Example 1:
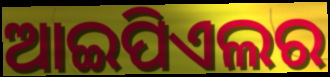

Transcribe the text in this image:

ଆଇପିଏଲର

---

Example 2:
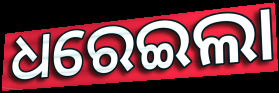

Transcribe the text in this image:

ଧରେଇଲା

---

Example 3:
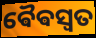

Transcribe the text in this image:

ଵୈଵସ୍ୱତ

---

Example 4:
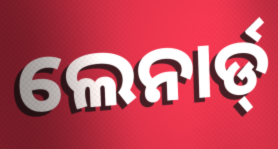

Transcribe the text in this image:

ଲେନାର୍ଡ୍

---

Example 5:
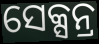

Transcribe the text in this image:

ସେକ୍ସନ୍ର